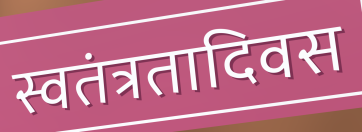
स्वतंत्रतादिवस